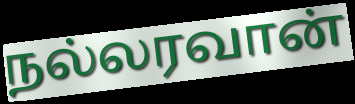
நல்லரவான்